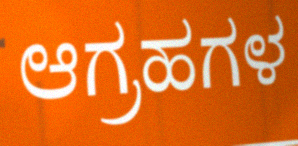
ಆಗ್ರಹಗಳ